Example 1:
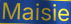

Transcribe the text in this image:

Maisie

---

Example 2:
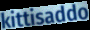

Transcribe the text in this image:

kittisaddo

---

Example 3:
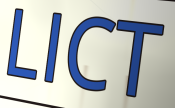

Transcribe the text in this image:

LICT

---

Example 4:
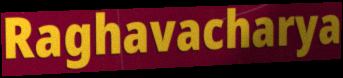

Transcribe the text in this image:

Raghavacharya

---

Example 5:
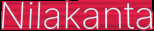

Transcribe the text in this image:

Nilakanta